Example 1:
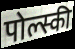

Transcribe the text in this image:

पोल्स्की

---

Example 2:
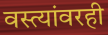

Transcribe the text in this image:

वस्त्यांवरही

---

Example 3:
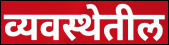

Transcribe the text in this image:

व्यवस्थेतील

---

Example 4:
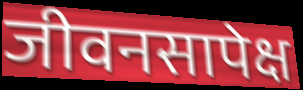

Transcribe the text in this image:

जीवनसापेक्ष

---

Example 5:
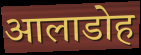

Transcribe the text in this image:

आलाडोह